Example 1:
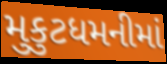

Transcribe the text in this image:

મુકુટધમનીમાં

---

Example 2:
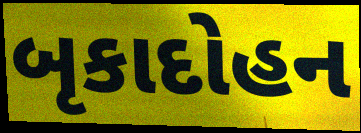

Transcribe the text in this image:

બૃકાદોહન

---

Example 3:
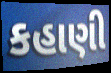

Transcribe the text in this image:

કહાણી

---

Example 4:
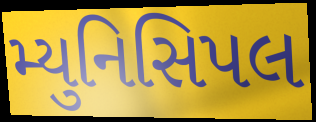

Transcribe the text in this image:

મ્યુનિસિપલ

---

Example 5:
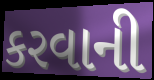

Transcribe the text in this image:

કરવાની